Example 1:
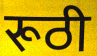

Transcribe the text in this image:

रूठी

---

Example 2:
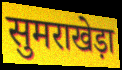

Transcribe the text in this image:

सुमराखेड़ा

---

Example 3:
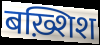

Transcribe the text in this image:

बख़्शिश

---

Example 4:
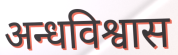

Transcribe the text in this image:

अन्धविश्वास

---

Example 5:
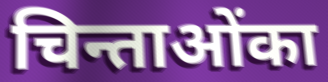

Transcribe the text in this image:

चिन्ताओंका